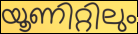
യൂണിറ്റിലും